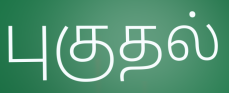
புகுதல்